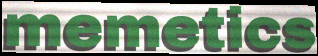
memetics